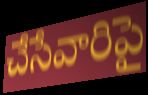
చేసేవారిపై